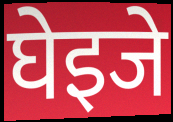
घेइजे